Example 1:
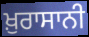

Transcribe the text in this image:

ਖ਼ੁਰਾਸਾਨੀ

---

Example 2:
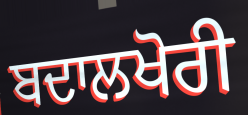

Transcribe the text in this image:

ਬਦਾਲਖੋਰੀ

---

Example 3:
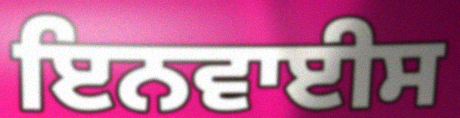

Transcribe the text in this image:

ਇਨਵਾਈਸ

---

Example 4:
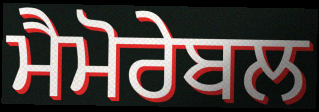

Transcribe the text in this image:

ਮੈਮੋਰੇਬਲ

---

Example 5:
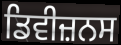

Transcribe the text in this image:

ਡਿਵੀਜ਼ਨਸ